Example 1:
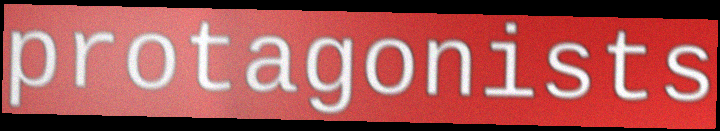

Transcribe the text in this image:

protagonists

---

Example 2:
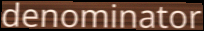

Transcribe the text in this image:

denominator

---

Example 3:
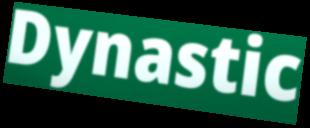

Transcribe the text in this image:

Dynastic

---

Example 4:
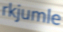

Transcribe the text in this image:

rkjumle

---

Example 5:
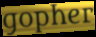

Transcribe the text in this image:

gopher